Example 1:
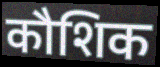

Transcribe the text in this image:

कौशिक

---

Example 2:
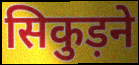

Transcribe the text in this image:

सिकुड़ने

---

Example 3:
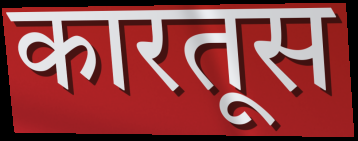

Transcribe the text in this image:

कारतूस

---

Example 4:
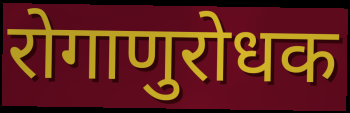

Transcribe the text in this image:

रोगाणुरोधक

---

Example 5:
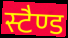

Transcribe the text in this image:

स्टैण्ड